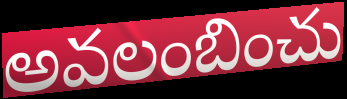
అవలంబించు